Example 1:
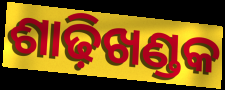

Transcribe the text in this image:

ଶାଢ଼ିଖଣ୍ଡକ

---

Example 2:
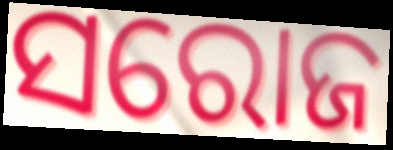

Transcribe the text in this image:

ସରୋଜ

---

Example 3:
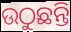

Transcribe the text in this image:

ଉଠୁଛନ୍ତି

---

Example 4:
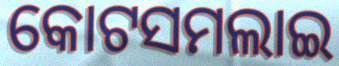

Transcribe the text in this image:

କୋଟସମଲାଇ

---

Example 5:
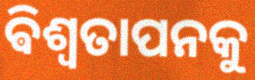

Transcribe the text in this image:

ଵିଶ୍ଵତାପନକୁ